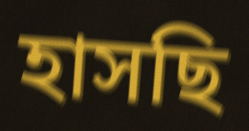
হাসছি